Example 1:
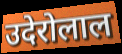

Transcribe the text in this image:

उदेरोलाल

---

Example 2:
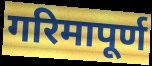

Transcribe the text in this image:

गरिमापूर्ण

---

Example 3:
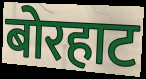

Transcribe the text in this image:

बोरहाट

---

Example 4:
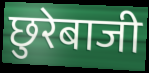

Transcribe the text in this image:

छुरेबाजी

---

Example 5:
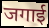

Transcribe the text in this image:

जगाई